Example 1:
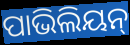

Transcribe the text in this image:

ପାଭିଲିୟନ୍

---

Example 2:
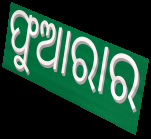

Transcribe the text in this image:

ଫୁଆରାର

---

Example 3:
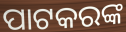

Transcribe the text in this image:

ପାଟକରଙ୍କ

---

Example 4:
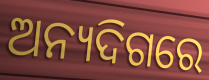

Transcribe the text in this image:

ଅନ୍ୟଦିଗରେ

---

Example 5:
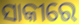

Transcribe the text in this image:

ସାକୀରେ